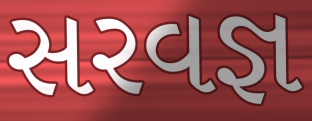
સરવજ્ઞ